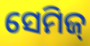
ସେମିଜ୍